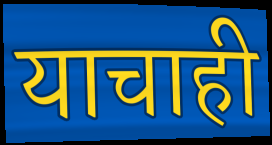
याचाही